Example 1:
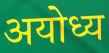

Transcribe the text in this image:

अयोध्य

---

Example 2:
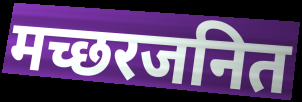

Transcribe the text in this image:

मच्छरजनित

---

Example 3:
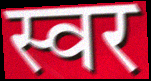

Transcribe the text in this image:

स्‍वर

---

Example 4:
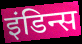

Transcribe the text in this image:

इंडिन्स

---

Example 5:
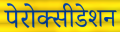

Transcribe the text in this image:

पेरोक्सीडेशन